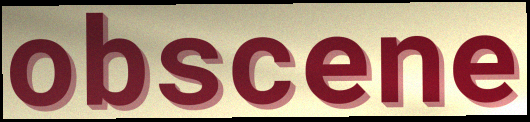
obscene